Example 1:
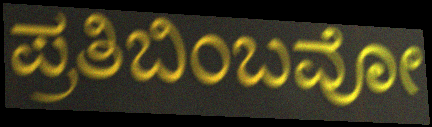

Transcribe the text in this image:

ಪ್ರತಿಬಿಂಬವೋ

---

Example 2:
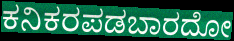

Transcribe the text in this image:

ಕನಿಕರಪಡಬಾರದೋ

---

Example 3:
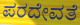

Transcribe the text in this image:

ಪರದೇವತೆ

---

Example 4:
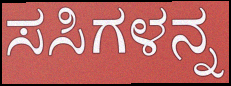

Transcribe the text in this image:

ಸಸಿಗಳನ್ನ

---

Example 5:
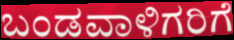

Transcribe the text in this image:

ಬಂಡವಾಳಿಗರಿಗೆ